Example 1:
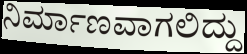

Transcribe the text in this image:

ನಿರ್ಮಾಣವಾಗಲಿದ್ದು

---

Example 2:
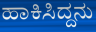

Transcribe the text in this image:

ಹಾಕಿಸಿದ್ದನು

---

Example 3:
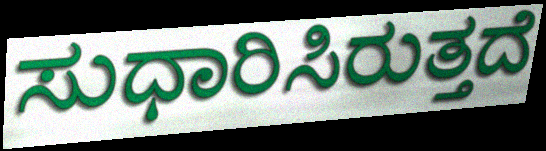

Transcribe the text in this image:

ಸುಧಾರಿಸಿರುತ್ತದೆ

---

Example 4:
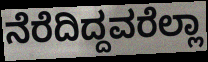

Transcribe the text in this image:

ನೆರೆದಿದ್ದವರೆಲ್ಲಾ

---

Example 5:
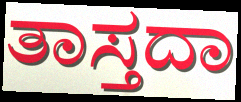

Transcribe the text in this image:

ತಾಸ್ತದಾ